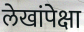
लेखांपेक्षा